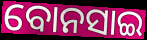
ବୋନସାଇ